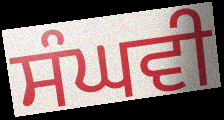
ਸੰਘਵੀ